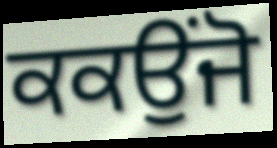
ਕਕਉਂਜੋ